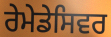
ਰੇਮੇਡੇਸਿਵਰ